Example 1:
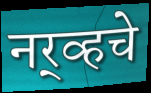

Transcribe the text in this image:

नर्व्हचे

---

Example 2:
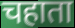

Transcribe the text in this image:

चहाता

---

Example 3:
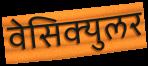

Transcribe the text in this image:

वेसिक्युलर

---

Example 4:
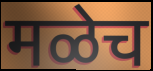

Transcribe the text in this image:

मळेच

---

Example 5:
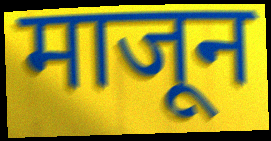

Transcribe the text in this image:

माजून